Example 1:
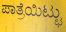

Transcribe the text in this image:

ಪಾತ್ರೆಯಿಟ್ಟು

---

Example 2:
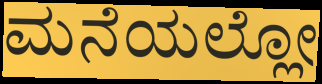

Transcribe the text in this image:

ಮನೆಯಲ್ಲೋ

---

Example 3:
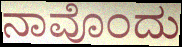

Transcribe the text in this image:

ನಾವೊಂದು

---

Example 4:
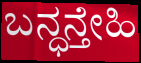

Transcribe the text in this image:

ಬನ್ಧನ್ತೇಹಿ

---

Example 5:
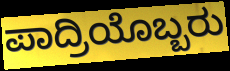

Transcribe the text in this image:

ಪಾದ್ರಿಯೊಬ್ಬರು